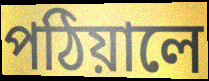
পঠিয়ালে